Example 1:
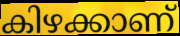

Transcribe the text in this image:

കിഴക്കാണ്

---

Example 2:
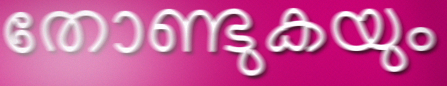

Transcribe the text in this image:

തോണ്ടുകയും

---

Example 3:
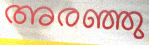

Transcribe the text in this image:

അരഞ്ഞു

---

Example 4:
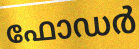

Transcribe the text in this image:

ഫോഡർ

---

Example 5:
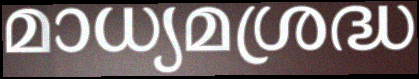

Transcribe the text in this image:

മാധ്യമശ്രദ്ധ